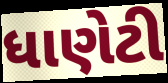
ધાણેટી